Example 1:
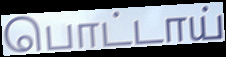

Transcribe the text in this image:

பொட்டாய்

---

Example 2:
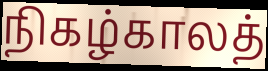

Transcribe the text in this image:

நிகழ்காலத்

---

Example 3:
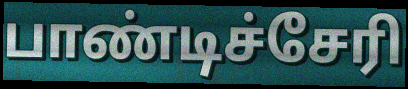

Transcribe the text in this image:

பாண்டிச்சேரி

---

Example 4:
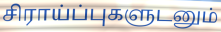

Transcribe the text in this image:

சிராய்ப்புகளுடனும்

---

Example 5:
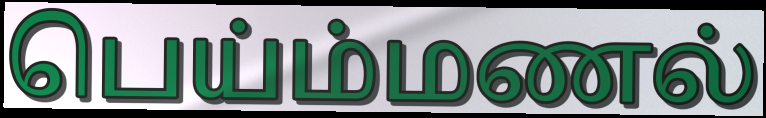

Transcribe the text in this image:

பெய்ம்மணல்